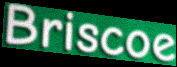
Briscoe